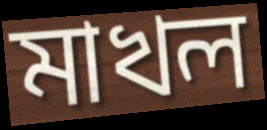
মাখল